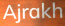
Ajrakh